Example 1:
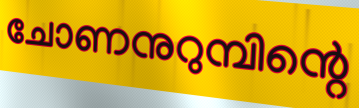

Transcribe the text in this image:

ചോണനുറുമ്പിന്റെ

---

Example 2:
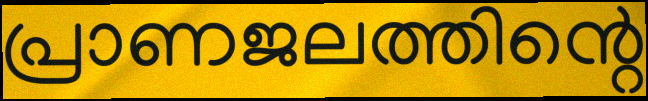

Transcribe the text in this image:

പ്രാണജലത്തിന്റെ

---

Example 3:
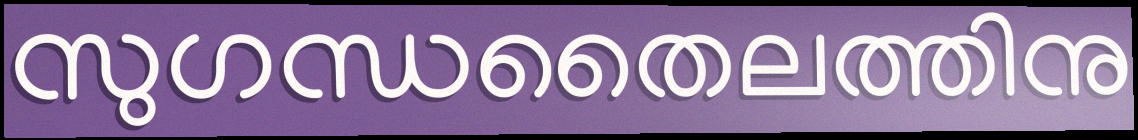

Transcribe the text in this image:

സുഗന്ധതൈലത്തിനു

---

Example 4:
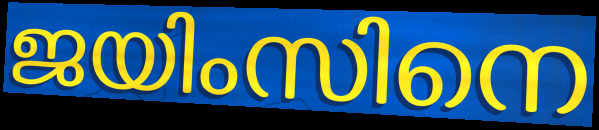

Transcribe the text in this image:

ജയിംസിനെ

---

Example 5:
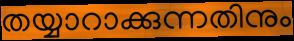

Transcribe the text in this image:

തയ്യാറാക്കുന്നതിനും